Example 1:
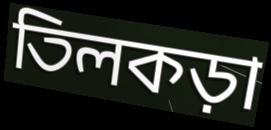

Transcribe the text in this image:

তিলকড়া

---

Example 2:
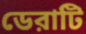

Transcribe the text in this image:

ডেরাটি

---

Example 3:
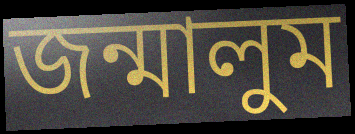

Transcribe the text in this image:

জন্মালুম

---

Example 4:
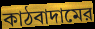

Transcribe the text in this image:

কাঠবাদামের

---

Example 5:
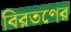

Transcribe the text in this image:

বিরতণের